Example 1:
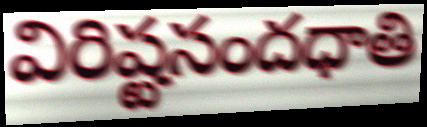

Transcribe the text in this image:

విరిష్టసందధాతి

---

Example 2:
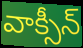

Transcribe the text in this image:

వాక్సీన్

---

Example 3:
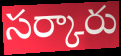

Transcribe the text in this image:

సర్కారు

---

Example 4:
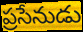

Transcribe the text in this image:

ప్రసేనుడు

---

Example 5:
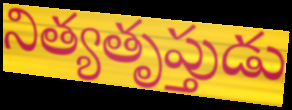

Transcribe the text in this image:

నిత్యతృప్తుడు